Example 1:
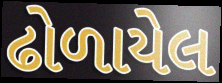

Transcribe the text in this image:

ઢોળાયેલ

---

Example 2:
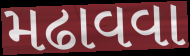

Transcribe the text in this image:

મઢાવવા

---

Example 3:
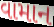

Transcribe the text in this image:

વામાન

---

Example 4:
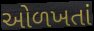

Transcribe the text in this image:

ઓળખતાં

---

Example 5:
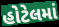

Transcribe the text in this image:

હોટેલમાં